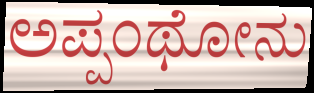
ಅಪ್ಪಂಥೋನು